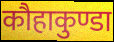
कौहाकुण्डा